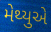
મેથ્યુએ